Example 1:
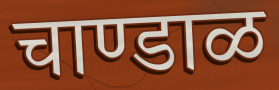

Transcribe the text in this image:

चाण्डाळ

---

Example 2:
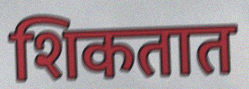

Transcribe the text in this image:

शिकतात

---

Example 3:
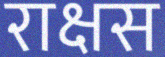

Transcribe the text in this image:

राक्षस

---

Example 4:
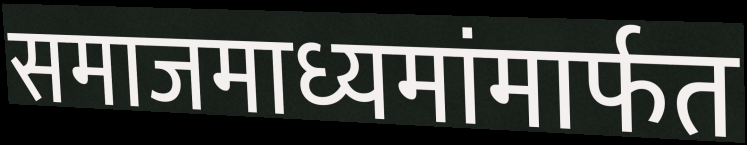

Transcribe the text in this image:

समाजमाध्यमांमार्फत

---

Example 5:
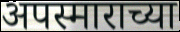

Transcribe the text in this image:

अपस्माराच्या